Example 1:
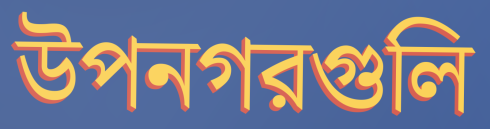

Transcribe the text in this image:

উপনগরগুলি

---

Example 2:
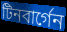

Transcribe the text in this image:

টিনবার্গেন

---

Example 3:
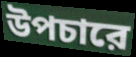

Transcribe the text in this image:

উপচারে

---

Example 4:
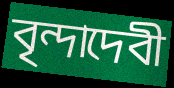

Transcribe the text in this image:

বৃন্দাদেবী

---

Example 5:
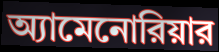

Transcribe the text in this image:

অ্যামেনোরিয়ার